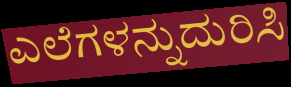
ಎಲೆಗಳನ್ನುದುರಿಸಿ